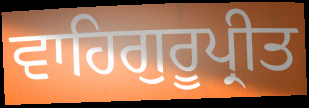
ਵਾਹਿਗੁਰੂਪ੍ਰੀਤ